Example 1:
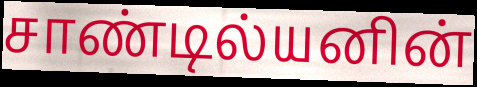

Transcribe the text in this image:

சாண்டில்யனின்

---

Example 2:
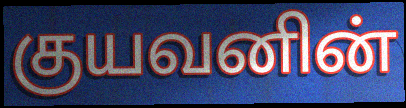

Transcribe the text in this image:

குயவனின்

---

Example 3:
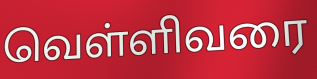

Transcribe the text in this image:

வெள்ளிவரை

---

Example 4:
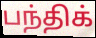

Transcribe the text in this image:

பந்திக்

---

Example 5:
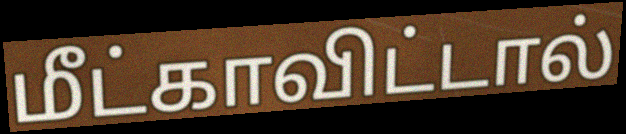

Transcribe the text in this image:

மீட்காவிட்டால்